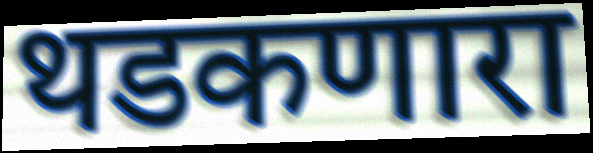
थडकणारा